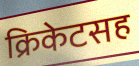
क्रिकेटसह